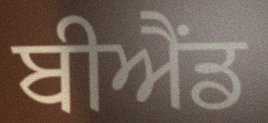
ਬੀਐਂਡ